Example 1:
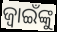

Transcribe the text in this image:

ଜ୍ବାଇଁଙ୍କୁ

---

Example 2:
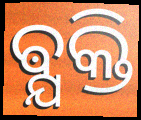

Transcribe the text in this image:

ଵ୍ଯକ୍ତି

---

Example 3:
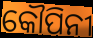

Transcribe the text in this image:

କୌପିନୀ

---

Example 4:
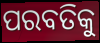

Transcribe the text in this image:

ପରବତିକୁ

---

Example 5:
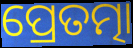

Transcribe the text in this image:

ପ୍ରେତତ୍ମା